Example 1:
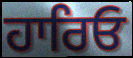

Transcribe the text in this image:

ਹਾਰਿਓ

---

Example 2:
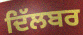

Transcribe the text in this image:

ਦਿੱਲਬਰ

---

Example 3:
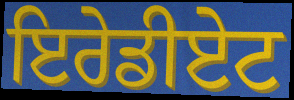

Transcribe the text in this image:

ਇਰੇਡੀਏਟ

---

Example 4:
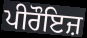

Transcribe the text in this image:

ਪੀਰੌਇਜ਼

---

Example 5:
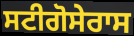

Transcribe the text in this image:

ਸਟੀਗੋਸੇਰਾਸ